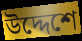
উদ্দেশে